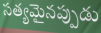
సత్యమైనప్పుడు